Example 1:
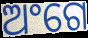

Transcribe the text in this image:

ଅଂଗେ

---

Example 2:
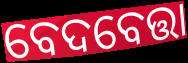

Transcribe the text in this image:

ବେଦବେତ୍ତା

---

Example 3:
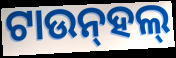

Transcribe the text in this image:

ଟାଉନ୍‌ହଲ୍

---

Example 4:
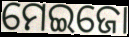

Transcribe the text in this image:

ମେଇଜୋ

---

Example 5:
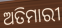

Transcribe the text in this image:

ଅତିମାରୀ